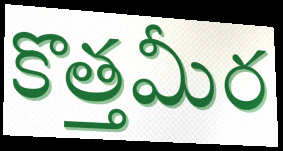
కొత్తమీర